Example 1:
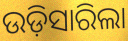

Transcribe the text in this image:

ଉଡ଼ିସାରିଲା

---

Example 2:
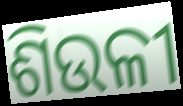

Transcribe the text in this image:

ଶିଉଳୀ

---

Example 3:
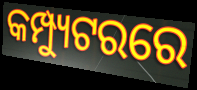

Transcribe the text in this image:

କମ୍ପ୍ୟୁଟରରେ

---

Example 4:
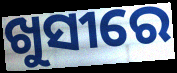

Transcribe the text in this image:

ଖୁସୀରେ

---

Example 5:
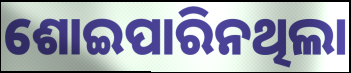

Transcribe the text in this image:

ଶୋଇପାରିନଥିଲା